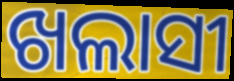
ଖଲାସୀ